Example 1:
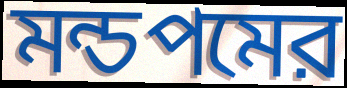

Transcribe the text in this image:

মন্ডপমের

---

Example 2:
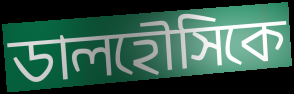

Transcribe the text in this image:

ডালহৌসিকে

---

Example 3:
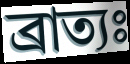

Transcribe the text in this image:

ব্রাত্যঃ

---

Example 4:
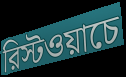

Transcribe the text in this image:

রিস্টওয়াচে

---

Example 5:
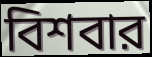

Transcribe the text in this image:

বিশবার